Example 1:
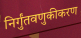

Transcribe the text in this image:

निर्गुंतवणुकीकरण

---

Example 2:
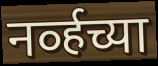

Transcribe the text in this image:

नर्व्हच्या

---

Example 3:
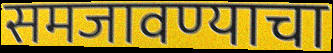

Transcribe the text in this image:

समजावण्याचा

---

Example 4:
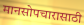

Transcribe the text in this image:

मानसोपचारासाठी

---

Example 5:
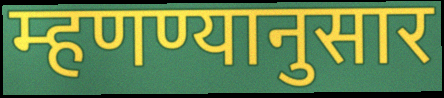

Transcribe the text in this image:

म्हणण्यानुसार